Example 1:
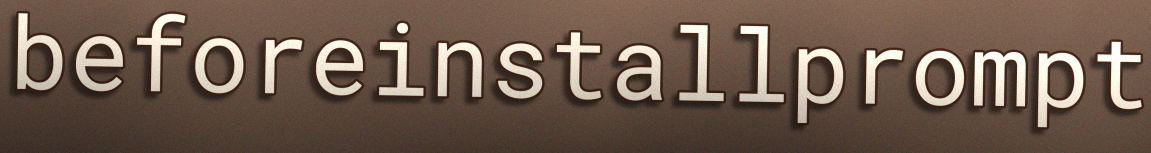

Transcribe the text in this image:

beforeinstallprompt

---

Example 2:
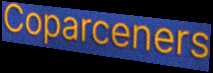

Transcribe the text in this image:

Coparceners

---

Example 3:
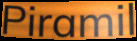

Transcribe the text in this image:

Piramil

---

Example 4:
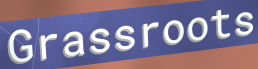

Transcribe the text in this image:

Grassroots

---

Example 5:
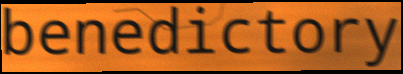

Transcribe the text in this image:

benedictory